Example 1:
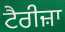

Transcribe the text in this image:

ਟੈਰੀਜ਼ਾ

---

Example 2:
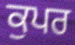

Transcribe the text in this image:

ਕੁਪਰ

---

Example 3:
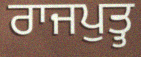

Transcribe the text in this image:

ਰਾਜਪੁਤ੍ਤ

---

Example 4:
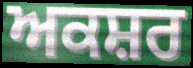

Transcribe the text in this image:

ਅਕਸ਼ਰ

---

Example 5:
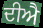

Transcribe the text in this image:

ਦੀਐ